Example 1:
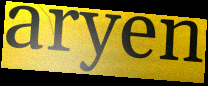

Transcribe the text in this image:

aryen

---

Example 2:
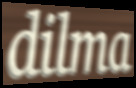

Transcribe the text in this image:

dilma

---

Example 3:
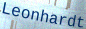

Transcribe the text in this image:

Leonhardt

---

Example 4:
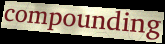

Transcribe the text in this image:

compounding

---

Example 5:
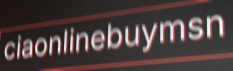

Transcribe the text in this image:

ciaonlinebuymsn